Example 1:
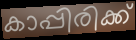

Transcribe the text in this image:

കാപ്പിരിക്ക്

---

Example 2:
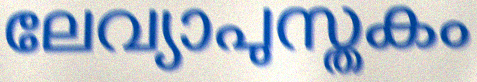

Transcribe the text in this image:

ലേവ്യാപുസ്തകം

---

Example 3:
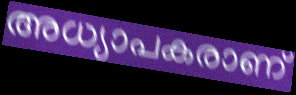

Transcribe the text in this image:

അധ്യാപകരാണ്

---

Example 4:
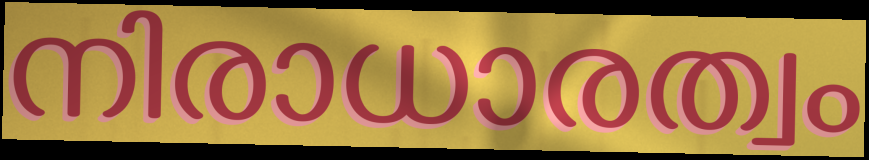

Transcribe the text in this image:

നിരാധാരത്വം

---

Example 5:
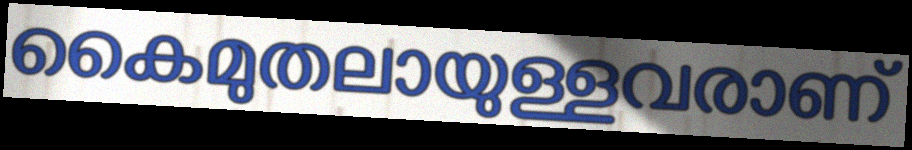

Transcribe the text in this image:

കൈമുതലായുള്ളവരാണ്